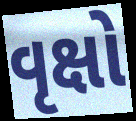
વૃક્ષો